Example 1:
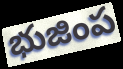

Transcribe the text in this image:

భుజింప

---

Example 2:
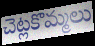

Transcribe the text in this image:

చెట్లకొమ్మలు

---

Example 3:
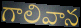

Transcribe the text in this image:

గాలివాన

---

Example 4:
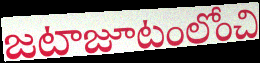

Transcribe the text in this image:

జటాజూటంలోంచి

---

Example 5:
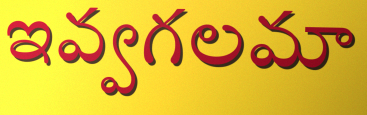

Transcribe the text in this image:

ఇవ్వగలమా